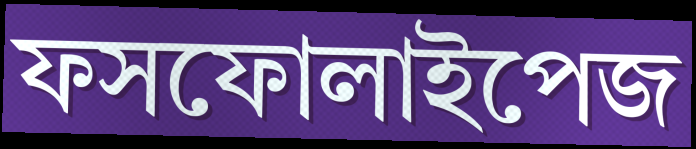
ফসফোলাইপেজ